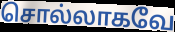
சொல்லாகவே